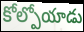
కోల్పోయాడు